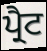
ਪ੍ਰੈਟ